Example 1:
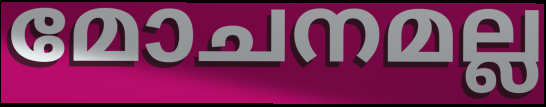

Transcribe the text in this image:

മോചനമല്ല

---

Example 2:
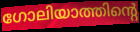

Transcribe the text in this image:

ഗോലിയാത്തിന്റെ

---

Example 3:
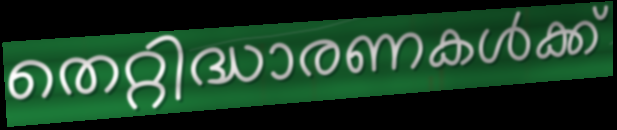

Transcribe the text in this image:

തെറ്റിദ്ധാരണകൾക്ക്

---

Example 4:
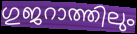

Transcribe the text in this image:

ഗുജറാത്തിലും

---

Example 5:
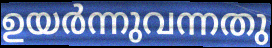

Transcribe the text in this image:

ഉയർന്നുവന്നതു